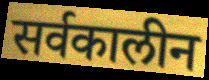
सर्वकालीन